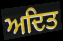
ਅਦਿਤ